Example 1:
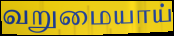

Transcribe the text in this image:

வறுமையாய்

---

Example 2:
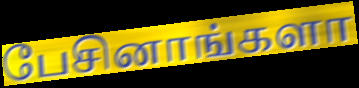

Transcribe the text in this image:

பேசினாங்களா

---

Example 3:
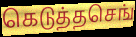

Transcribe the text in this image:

கெடுத்தசெங்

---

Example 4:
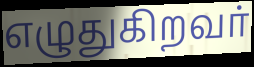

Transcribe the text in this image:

எழுதுகிறவர்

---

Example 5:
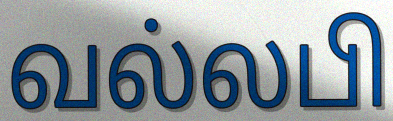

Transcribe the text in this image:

வல்லபி